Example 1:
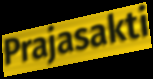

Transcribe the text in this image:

Prajasakti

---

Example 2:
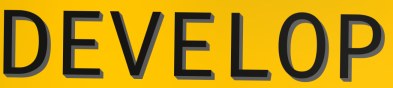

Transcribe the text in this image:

DEVELOP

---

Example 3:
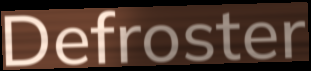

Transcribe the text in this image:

Defroster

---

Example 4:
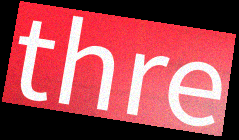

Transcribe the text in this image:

thre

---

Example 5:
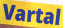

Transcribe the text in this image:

Vartal